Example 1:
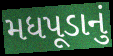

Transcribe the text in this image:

મધપૂડાનું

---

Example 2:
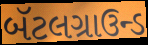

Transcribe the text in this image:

બૅટલગ્રાઉન્ડ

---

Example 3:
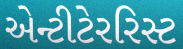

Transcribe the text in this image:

એન્ટીટેરરિસ્ટ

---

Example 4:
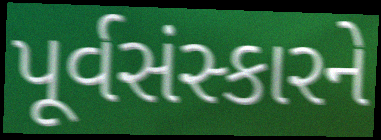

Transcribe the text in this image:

પૂર્વસંસ્કારને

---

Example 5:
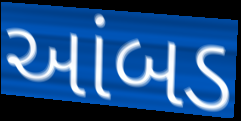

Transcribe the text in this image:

આંબડ